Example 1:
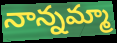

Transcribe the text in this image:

నాన్నమ్మా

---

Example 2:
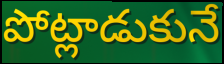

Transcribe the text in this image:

పోట్లాడుకునే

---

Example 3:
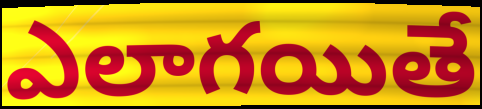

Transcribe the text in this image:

ఎలాగయితే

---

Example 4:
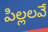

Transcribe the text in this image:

పిల్లలవే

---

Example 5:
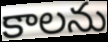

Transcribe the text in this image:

కాలను